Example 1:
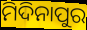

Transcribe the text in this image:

ମିଦିନାପୁର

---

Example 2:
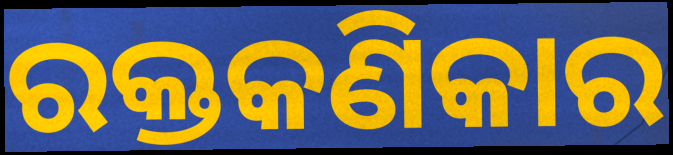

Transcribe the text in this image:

ରକ୍ତକଣିକାର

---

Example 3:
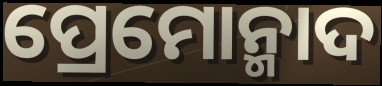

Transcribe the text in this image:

ପ୍ରେମୋନ୍ମାଦ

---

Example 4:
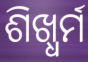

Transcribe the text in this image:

ଶିଖ୍ଧର୍ମ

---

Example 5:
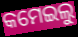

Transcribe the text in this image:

କମେଇଲୁ